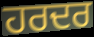
ਹਰਦਰ